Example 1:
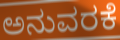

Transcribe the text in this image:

ಅನುವರಕೆ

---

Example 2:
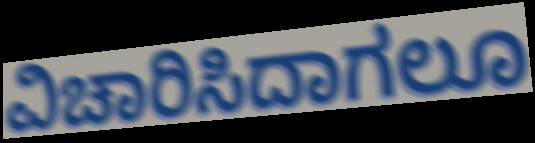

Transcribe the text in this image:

ವಿಚಾರಿಸಿದಾಗಲೂ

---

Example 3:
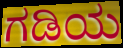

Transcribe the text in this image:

ಗಡಿಯ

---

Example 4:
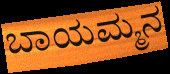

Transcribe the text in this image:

ಬಾಯಮ್ಮನ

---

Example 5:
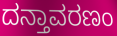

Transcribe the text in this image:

ದನ್ತಾವರಣಂ